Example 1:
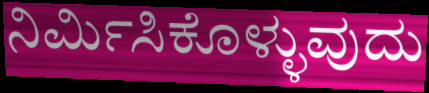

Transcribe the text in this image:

ನಿರ್ಮಿಸಿಕೊಳ್ಳುವುದು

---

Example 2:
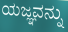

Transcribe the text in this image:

ಯಜ್ಞವನ್ನು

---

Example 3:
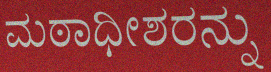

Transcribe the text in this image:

ಮಠಾಧೀಶರನ್ನು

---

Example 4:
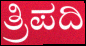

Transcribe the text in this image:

ತ್ರಿಪದಿ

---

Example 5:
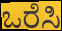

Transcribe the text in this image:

ಒರೆಸಿ